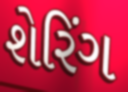
શેરિંગ